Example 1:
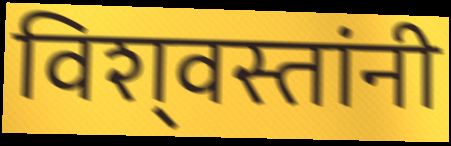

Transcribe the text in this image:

विश्वस्तांनी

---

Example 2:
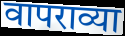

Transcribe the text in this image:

वापराव्या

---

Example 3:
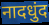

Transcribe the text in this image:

नादधुंद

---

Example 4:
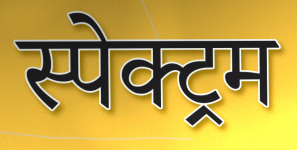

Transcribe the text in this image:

स्पेक्ट्रम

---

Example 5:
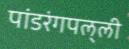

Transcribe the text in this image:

पांडरंगपल्ली